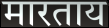
मारताय